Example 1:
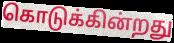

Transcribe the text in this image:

கொடுக்கின்றது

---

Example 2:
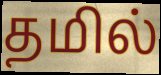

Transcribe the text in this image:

தமில்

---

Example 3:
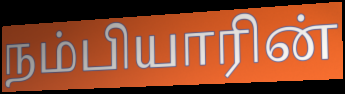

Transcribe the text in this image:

நம்பியாரின்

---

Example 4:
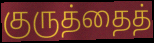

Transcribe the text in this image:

குருத்தைத்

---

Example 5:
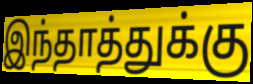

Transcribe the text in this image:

இந்தாத்துக்கு